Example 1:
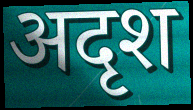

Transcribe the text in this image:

अदृश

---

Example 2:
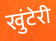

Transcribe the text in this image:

खुंटेरी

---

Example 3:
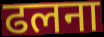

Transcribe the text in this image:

ढलना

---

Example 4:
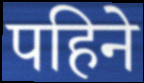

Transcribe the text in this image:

पहिने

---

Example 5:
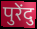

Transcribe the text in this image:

पुरेंदु